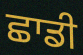
ਛਾਡੀ